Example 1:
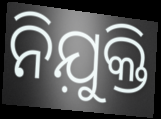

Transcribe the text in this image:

ନିଯ଼ୁକ୍ତି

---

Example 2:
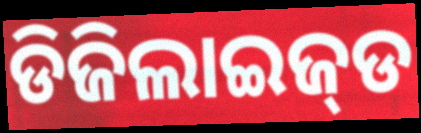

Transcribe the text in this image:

ଡିଜିଲାଇଜ୍‌ଡ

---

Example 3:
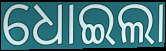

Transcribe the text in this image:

ଧୋଇଲା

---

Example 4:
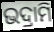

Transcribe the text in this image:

ଭଦ୍ରାମି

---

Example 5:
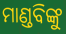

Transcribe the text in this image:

ମାଣ୍ଡବିଙ୍କୁ